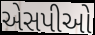
એસપીઓ